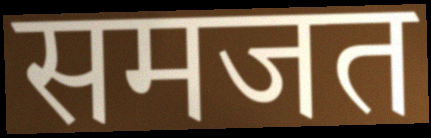
समजत